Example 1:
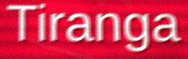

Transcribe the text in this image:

Tiranga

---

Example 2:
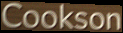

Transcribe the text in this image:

Cookson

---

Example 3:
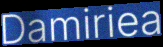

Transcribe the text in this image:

Damiriea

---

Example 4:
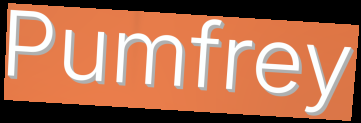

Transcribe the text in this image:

Pumfrey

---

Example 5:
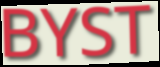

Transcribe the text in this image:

BYST